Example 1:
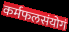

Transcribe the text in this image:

कर्मफलसंयोगं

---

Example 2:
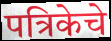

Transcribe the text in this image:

पत्रिकेचे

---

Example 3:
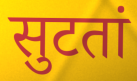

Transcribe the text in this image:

सुटतां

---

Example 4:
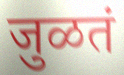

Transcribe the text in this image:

जुळतं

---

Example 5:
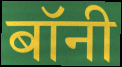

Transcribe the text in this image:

बॉनी